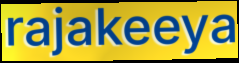
rajakeeya